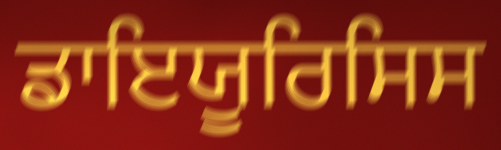
ਡਾਇਯੂਰਿਸਿਸ